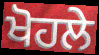
ਖੋਹਲੇ